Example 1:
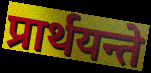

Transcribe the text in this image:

प्रार्थयन्ते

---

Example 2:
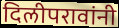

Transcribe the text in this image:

दिलीपरावांनी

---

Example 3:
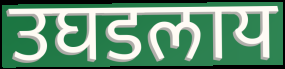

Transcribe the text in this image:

उघडलाय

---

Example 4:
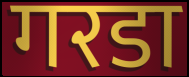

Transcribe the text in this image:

गरडा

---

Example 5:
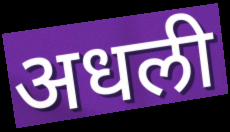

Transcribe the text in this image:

अधली